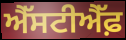
ਐੱਸਟੀਐੱਫ਼